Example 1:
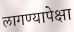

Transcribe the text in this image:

लागण्यापेक्षा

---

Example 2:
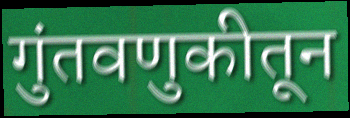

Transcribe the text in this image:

गुंतवणुकीतून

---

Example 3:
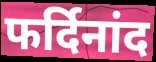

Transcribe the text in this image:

फर्दिनांद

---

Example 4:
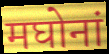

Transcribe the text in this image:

मघोनां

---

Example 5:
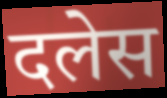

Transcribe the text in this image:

दलेस